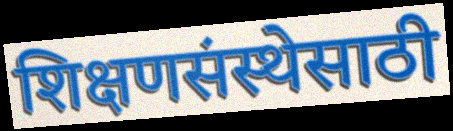
शिक्षणसंस्थेसाठी